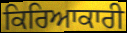
ਕਿਰਿਆਕਾਰੀ